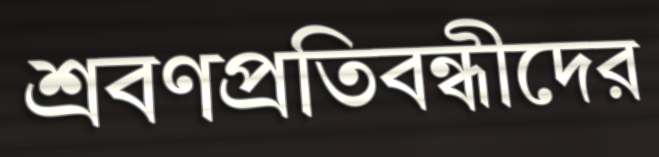
শ্রবণপ্রতিবন্ধীদের